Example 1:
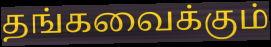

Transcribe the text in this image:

தங்கவைக்கும்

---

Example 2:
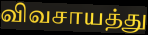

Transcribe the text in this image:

விவசாயத்து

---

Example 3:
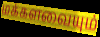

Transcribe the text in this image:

மக்களவையும்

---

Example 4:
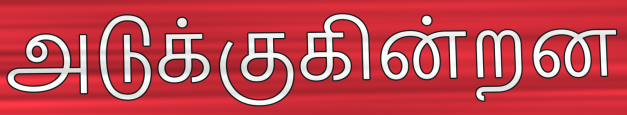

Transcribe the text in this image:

அடுக்குகின்றன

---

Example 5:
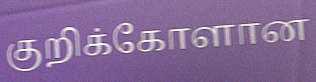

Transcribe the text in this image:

குறிக்கோளான